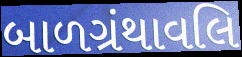
બાળગ્રંથાવલિ